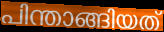
പിന്താങ്ങിയത്